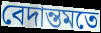
বেদান্তমতে